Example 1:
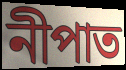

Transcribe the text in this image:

নীপাত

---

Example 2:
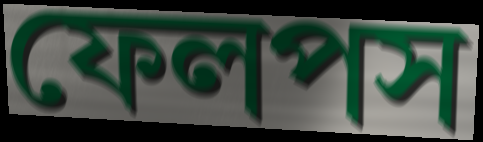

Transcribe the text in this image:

ফেলপস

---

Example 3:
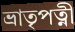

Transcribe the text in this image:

ভ্রাতৃপত্নী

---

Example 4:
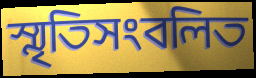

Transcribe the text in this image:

স্মৃতিসংবলিত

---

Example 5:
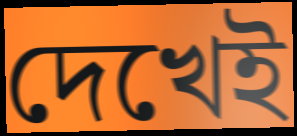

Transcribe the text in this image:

দেখেই